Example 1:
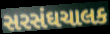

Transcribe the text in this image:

સરસંઘચાલક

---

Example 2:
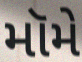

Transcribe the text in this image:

મૉમે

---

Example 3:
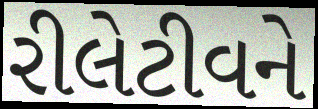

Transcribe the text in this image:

રીલેટીવને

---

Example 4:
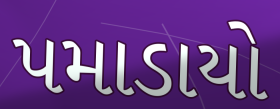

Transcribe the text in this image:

પમાડાયો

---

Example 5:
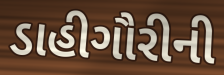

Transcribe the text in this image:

ડાહીગૌરીની